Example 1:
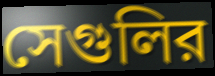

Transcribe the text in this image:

সেগুলির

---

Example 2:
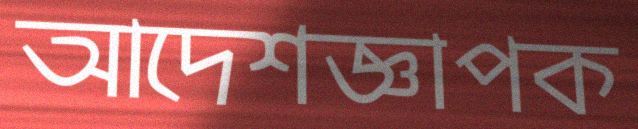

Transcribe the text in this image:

আদেশজ্ঞাপক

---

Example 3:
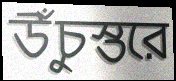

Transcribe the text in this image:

উঁচুস্তরে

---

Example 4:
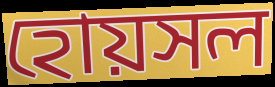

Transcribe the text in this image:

হোয়সল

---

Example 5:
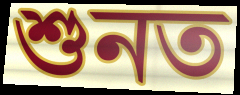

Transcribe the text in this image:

শুনত